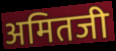
अमितजी